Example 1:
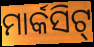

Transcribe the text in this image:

ମାର୍କସିଟ୍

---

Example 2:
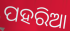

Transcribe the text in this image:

ପହରିଆ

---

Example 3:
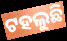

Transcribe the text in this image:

ଟହଲୁଛି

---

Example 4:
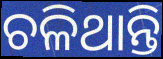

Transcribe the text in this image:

ଚଳିଥାନ୍ତି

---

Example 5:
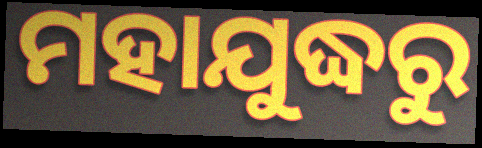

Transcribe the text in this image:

ମହାଯୁଦ୍ଧରୁ